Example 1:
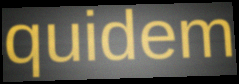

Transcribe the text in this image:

quidem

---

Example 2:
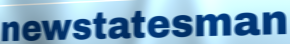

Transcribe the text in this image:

newstatesman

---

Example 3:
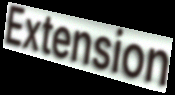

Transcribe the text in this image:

Extension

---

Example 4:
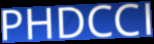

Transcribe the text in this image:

PHDCCI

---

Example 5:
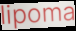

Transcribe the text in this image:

lipoma